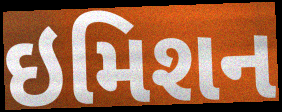
ઇમિશન